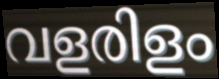
വളരിളം